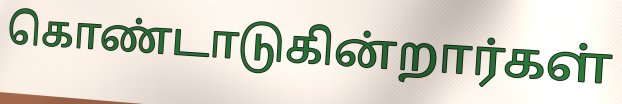
கொண்டாடுகின்றார்கள்